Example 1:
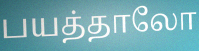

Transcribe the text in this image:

பயத்தாலோ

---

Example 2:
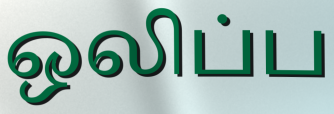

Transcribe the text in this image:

ஒலிப்ப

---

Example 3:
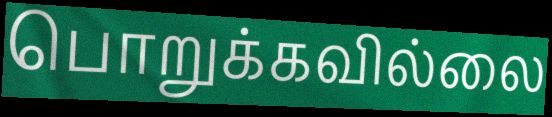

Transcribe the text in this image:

பொறுக்கவில்லை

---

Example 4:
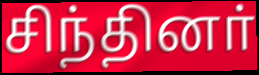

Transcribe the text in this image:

சிந்தினர்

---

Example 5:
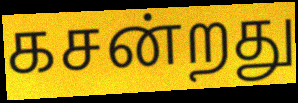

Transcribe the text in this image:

கசன்றது